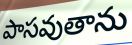
పాసవుతాను